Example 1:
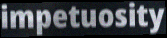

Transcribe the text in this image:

impetuosity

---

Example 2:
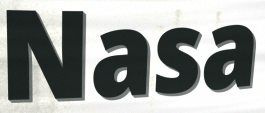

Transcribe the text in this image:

Nasa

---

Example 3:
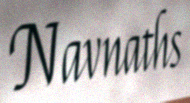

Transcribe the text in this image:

Navnaths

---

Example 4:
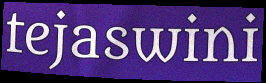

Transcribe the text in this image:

tejaswini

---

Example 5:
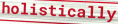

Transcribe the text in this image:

holistically